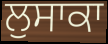
ਲੁਸਾਕਾ